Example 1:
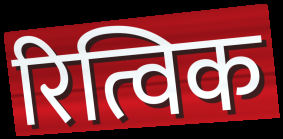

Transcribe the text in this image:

रित्विक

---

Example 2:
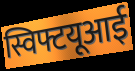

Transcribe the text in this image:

स्विफ्टयूआई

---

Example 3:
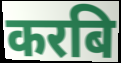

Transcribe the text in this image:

करबि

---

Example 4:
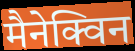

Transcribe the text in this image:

मैनेक्विन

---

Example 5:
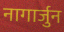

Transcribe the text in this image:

नागार्जुन